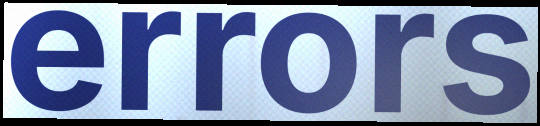
errors